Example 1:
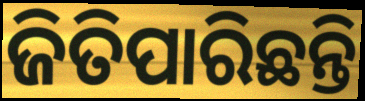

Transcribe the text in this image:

ଜିତିପାରିଛନ୍ତି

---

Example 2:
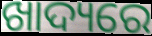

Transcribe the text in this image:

ଖାଦ୍ୟରେ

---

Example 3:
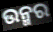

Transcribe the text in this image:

ଉନ୍ମର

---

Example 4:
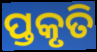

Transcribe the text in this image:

ପ୍ତକୃତି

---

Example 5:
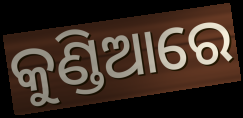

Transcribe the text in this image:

କୁଣ୍ଡିଆରେ